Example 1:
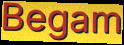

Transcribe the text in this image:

Begam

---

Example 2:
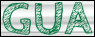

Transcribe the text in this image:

GUA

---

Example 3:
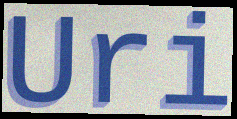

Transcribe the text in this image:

Uri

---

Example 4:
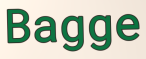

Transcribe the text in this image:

Bagge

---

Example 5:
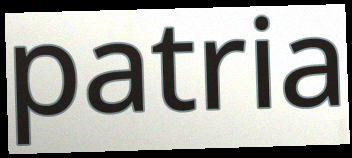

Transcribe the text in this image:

patria